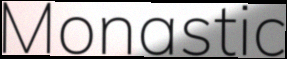
Monastic